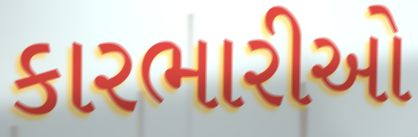
કારભારીઓ